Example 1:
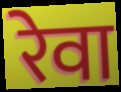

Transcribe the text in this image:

रेवा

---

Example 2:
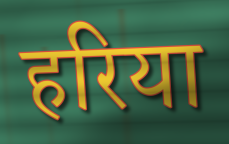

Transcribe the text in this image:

हरिया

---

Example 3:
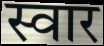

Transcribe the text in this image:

स्वार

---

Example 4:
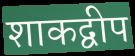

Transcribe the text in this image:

शाकद्वीप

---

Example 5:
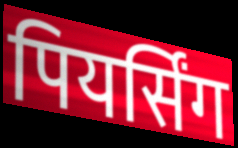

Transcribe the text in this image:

पियर्सिंग